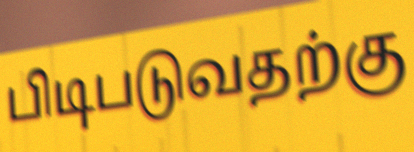
பிடிபடுவதற்கு